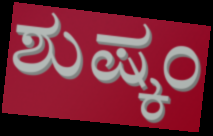
ಶುಷ್ಕಂ